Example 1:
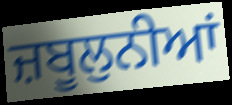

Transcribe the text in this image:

ਜ਼ਬੂਲੁਨੀਆਂ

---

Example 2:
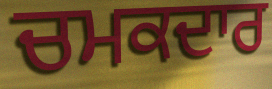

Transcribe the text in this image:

ਚਮਕਦਾਰ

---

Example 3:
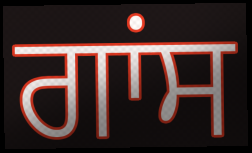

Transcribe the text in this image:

ਗਾਂਸ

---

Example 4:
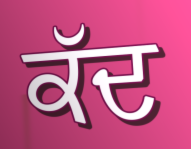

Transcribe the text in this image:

ਕੱਦ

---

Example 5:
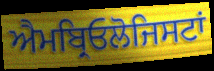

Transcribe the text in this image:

ਐਮਬ੍ਰਿਓਲੋਜਿਸਟਾਂ